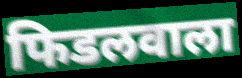
फिडलवाला